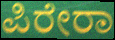
ಪಿರೇರಾ